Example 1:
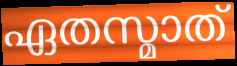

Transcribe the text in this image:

ഏതസ്മാത്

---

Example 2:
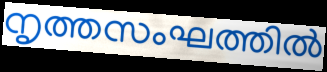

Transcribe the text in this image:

നൃത്തസംഘത്തിൽ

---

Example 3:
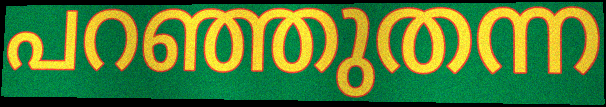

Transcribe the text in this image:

പറഞ്ഞുതന്ന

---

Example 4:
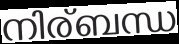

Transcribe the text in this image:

നിര്ബന്ധ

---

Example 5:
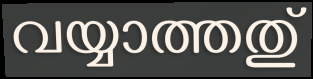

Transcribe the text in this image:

വയ്യാത്തതു്